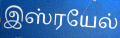
இஸ்ரயேல்